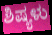
ಶಿಷ್ಯಳು